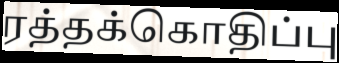
ரத்தக்கொதிப்பு